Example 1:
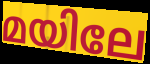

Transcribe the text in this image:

മയിലേ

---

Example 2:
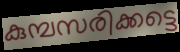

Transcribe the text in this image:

കുമ്പസരിക്കട്ടെ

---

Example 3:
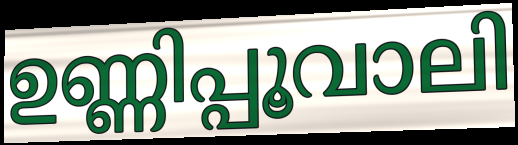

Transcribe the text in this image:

ഉണ്ണിപ്പൂവാലി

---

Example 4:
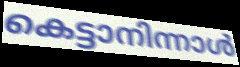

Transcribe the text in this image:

കെട്ടാനിന്നാൾ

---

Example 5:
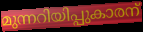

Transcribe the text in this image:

മുന്നറിയിപ്പുകാരന്